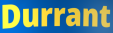
Durrant